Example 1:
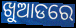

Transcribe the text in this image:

ଖୁଆଡରେ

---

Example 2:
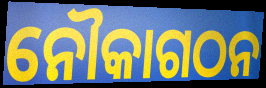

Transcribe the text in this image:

ନୌକାଗଠନ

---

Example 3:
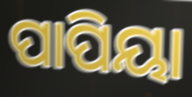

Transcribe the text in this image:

ପାପିୟା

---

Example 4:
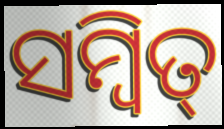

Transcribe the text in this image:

ସମ୍ବିତ୍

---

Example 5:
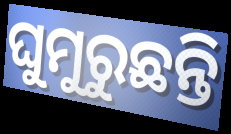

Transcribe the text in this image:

ଘୁମୁରୁଛନ୍ତି